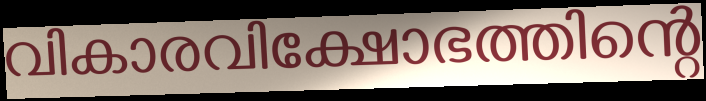
വികാരവിക്ഷോഭത്തിന്റെ